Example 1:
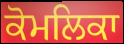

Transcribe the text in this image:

ਕੋਮਲਿਕਾ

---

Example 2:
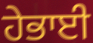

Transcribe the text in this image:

ਹੇਭਾਈ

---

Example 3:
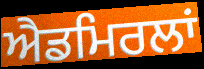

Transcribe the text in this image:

ਐਡਮਿਰਲਾਂ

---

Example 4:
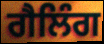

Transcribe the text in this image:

ਗੈਲਿੰਗ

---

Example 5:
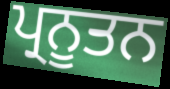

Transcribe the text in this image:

ਪ੍ਰਨੂਤਨ